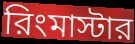
রিংমাস্টার